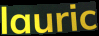
lauric